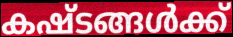
കഷ്ടങ്ങൾക്ക്